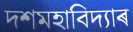
দশমহাবিদ্যাৰ